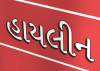
હાયલીન